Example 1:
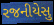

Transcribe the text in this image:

રજનીયેસુ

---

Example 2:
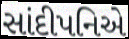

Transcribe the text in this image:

સાંદીપનિએ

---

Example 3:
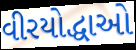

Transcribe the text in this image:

વીરયોદ્ધાઓ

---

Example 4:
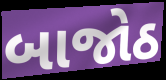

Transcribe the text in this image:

બાજોઠ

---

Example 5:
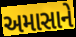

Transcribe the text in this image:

અમાસાને